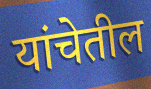
यांचेतील